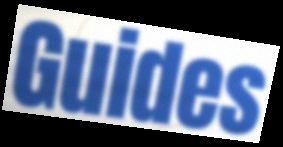
Guides